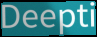
Deepti